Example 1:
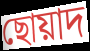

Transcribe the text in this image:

ছোয়াদ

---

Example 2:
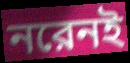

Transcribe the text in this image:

নরেনই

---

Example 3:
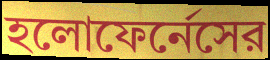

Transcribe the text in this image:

হলোফের্নেসের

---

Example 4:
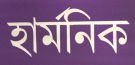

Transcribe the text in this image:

হার্মনিক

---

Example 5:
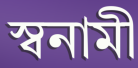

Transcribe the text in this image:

স্বনামী